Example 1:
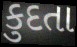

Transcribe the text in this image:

કુદતા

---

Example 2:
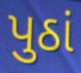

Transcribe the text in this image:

પુઠાં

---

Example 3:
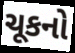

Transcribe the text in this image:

ચૂકનો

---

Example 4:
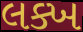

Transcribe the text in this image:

લક્ખ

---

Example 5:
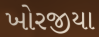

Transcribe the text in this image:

ખોરજીયા